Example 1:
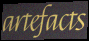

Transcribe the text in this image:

artefacts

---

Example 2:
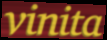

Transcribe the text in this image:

vinita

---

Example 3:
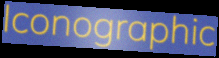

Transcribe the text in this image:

Iconographic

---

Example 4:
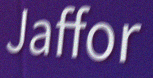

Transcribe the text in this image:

Jaffor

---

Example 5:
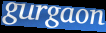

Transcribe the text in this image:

gurgaon